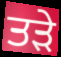
ਤੜੇ